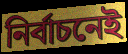
নির্বাচনেই